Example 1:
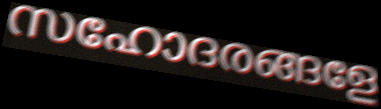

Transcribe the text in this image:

സഹോദരങ്ങളേ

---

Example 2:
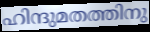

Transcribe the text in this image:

ഹിന്ദുമതത്തിനു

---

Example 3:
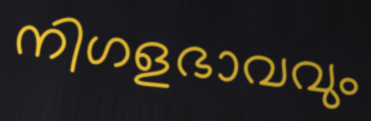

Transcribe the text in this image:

നിഗളഭാവവും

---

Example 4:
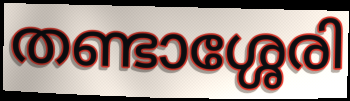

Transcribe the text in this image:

തണ്ടാശ്ശേരി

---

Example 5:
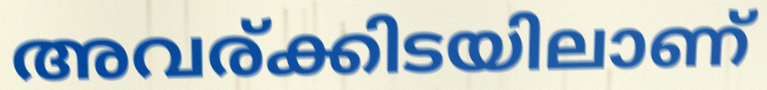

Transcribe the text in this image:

അവര്ക്കിടയിലാണ്